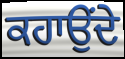
ਕਹਾਉਂਦੇ